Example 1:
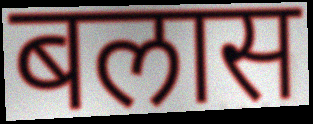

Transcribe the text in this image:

बलास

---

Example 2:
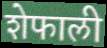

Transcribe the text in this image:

शेफाली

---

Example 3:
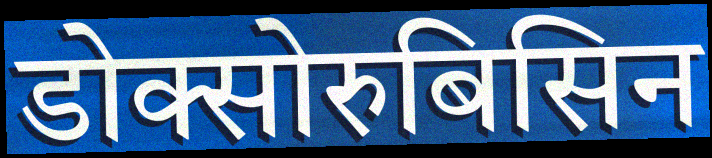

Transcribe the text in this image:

डोक्सोरुबिसिन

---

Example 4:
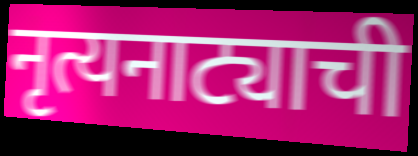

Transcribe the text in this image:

नृत्यनाट्याची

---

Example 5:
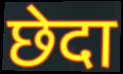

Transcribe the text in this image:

छेदा